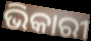
ଭିକାରୀ